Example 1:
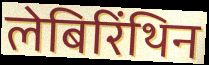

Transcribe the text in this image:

लेबिरिंथिन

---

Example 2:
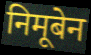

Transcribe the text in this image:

निमूबेन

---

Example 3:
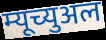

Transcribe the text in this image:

म्यूच्युअल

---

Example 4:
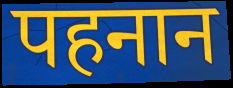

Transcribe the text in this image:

पहनान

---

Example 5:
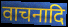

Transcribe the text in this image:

वाचनादि